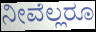
ನೀವೆಲ್ಲರೂ